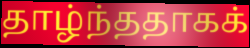
தாழ்ந்ததாகக்